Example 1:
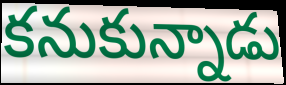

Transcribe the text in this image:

కనుకున్నాడు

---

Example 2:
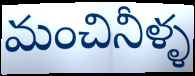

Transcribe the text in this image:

మంచినీళ్ళ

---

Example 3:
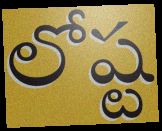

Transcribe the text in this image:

లోష్ట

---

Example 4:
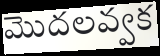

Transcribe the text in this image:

మొదలవ్వక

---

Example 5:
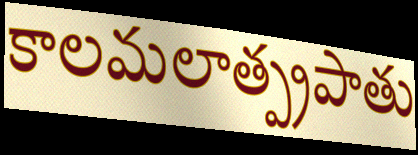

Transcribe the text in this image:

కాలమలాత్ప్రపాతు